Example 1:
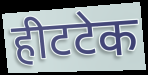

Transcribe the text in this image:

हीटटेक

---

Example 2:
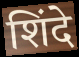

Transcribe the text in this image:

शिंदे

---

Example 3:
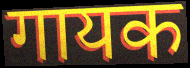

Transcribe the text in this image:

गायक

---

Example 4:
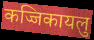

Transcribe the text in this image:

कज्जिकायलु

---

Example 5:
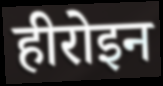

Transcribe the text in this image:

हीरोइन